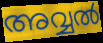
അവ്വൽ